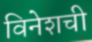
विनेशची